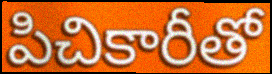
పిచికారీతో